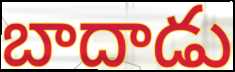
బాదాడు